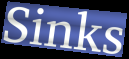
Sinks